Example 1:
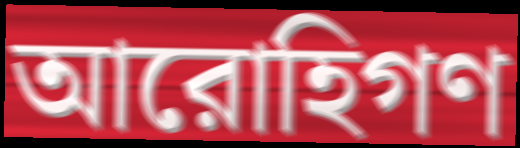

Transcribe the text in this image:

আরোহিগণ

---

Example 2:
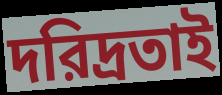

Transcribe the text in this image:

দরিদ্রতাই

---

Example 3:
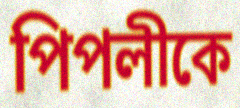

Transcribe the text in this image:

পিপলীকে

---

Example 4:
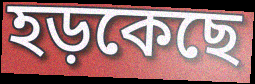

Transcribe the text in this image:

হড়কেছে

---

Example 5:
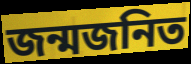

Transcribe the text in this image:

জন্মজনিত